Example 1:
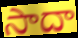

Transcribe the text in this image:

సాదా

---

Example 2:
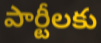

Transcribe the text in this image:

పార్టీలకు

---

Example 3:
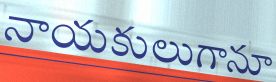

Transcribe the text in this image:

నాయకులుగానూ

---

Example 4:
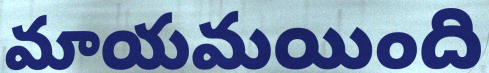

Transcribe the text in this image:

మాయమయింది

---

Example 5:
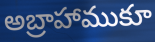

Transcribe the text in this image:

అబ్రాహాముకూ